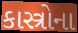
કાસ્ત્રોના